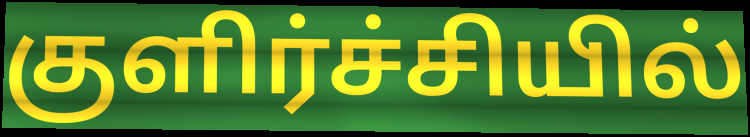
குளிர்ச்சியில்